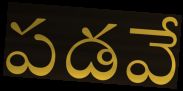
పడవే